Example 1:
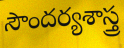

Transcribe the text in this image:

సౌందర్యశాస్త్ర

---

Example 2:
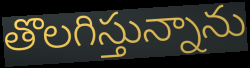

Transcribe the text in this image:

తొలగిస్తున్నాను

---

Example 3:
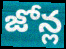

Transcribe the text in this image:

జోన్ల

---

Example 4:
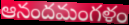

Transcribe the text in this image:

ఆనందమంగళం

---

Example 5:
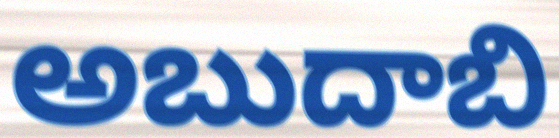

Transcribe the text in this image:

అబుదాబి